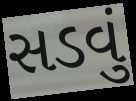
સડવું